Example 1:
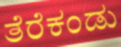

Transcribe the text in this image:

ತೆರೆಕಂಡು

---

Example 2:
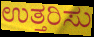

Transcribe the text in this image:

ಉತ್ತರಿಸು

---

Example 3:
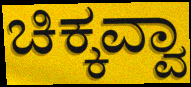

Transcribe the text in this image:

ಚಿಕ್ಕವ್ವಾ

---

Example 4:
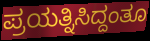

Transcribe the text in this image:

ಪ್ರಯತ್ನಿಸಿದ್ದಂತೂ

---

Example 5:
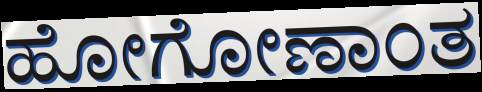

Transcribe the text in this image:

ಹೋಗೋಣಾಂತ